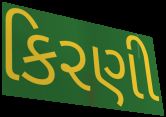
કિરણી